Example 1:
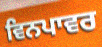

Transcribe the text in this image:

ਵਿਨਪਾਵਰ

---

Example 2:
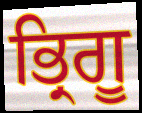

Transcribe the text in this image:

ਭ੍ਰਿਗੂ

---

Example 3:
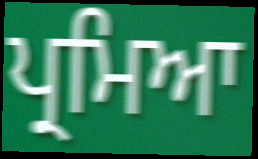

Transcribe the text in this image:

ਪ੍ਰਮਿਆ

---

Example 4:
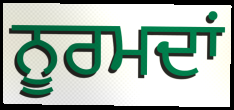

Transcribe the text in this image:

ਨੂਰਮਦਾਂ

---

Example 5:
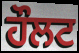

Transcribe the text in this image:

ਹੌਲਟ